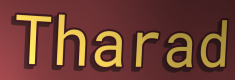
Tharad